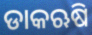
ଡାକଋଷି